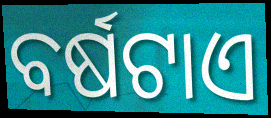
ବର୍ଷଟାଏ